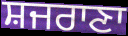
ਸ਼ਜਰਾਣਾ